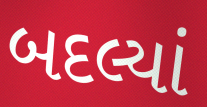
બદલ્યાં